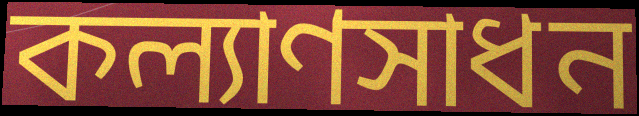
কল্যাণসাধন